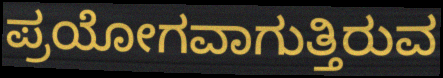
ಪ್ರಯೋಗವಾಗುತ್ತಿರುವ